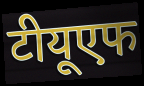
टीयूएफ